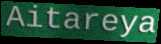
Aitareya